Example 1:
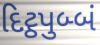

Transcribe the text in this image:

દિટ્ઠપુબ્બં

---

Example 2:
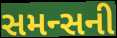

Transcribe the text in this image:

સમન્સની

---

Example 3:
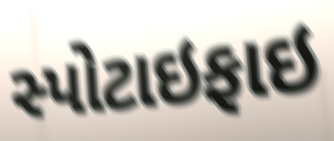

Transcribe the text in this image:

સ્પોટાઇફાઇ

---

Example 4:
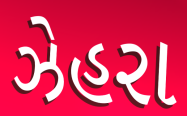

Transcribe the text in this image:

ઝેહરા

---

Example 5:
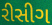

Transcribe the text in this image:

રીસીગ